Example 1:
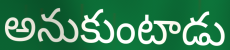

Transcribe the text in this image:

అనుకుంటాడు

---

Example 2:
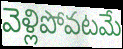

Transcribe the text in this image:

వెళ్లిపోవటమే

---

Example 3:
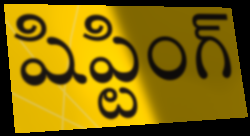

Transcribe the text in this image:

షిప్టింగ్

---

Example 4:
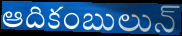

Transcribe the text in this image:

ఆదికంబులున్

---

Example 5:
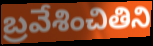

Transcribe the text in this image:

బ్రవేశించితిని